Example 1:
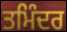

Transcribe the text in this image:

ਤਮਿੰਦਰ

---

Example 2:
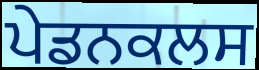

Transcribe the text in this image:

ਪੇਡਨਕਲਸ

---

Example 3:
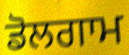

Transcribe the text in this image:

ਡੋਲਗਾਮ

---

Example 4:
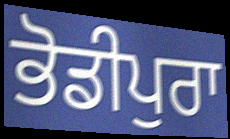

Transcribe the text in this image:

ਭੋਡੀਪੁਰਾ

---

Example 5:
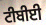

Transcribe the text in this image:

ਟੀਬੀਈ